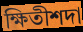
ক্ষিতীশদা